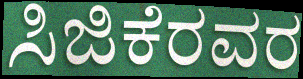
ಸಿಜಿಕೆರವರ